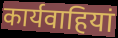
कार्यवाहियां